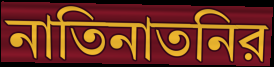
নাতিনাতনির